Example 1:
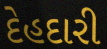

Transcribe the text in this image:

દેહદારી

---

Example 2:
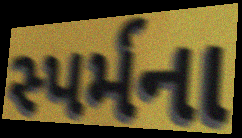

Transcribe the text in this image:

સ્પર્મના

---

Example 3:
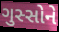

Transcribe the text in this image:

ગુસ્સોને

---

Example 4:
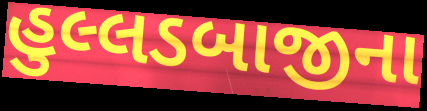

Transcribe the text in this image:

હુલ્લડબાજીના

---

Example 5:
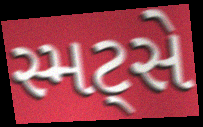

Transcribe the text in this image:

સ્મટ્સે